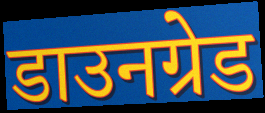
डाउनग्रेड